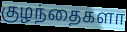
குழந்தைகளா